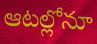
ఆటల్లోనూ